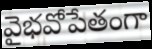
వైభవోపేతంగా